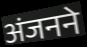
अंजनने